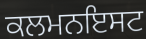
ਕਲਮਨਇਸਟ